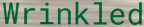
Wrinkled